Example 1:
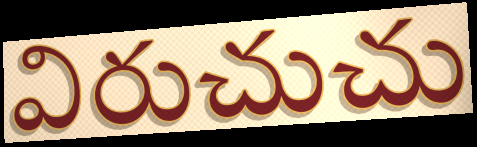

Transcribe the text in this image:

విరుచుచు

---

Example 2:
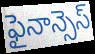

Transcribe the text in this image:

ఫైనాన్సెస్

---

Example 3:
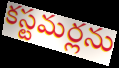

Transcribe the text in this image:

కస్టమర్లను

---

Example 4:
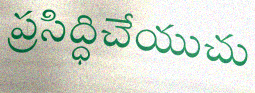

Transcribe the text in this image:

ప్రసిద్ధిచేయుచు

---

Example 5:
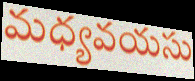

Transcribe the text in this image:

మధ్యవయసు